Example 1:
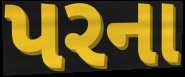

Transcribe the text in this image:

પરના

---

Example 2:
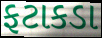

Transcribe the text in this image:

ફટાકડા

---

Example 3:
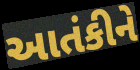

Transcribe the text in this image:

આતંકીને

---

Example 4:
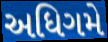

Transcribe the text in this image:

અધિગમે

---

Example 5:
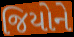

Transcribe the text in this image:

જિયોને